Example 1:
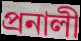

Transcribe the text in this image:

প্রনালী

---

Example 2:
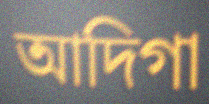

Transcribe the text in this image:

আদিগা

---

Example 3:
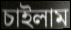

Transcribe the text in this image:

চাইলাম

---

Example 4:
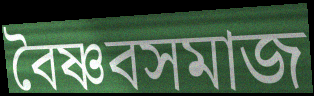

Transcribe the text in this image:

বৈষ্ণবসমাজ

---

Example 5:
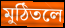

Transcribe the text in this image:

মুঠিতলে